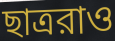
ছাত্ররাও